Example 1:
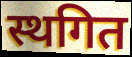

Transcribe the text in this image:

स्थगित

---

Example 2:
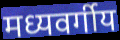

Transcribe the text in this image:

मध्यवर्गीय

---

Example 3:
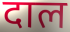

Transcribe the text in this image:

दाल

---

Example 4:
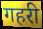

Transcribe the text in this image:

गहरी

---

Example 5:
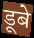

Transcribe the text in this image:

डूबे